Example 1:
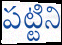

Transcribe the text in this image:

పట్టిని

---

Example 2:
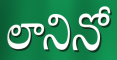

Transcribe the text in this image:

లానినో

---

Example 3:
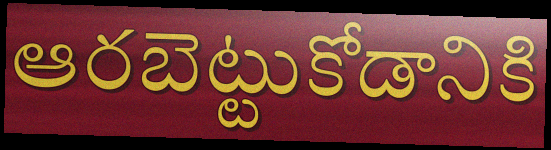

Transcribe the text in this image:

ఆరబెట్టుకోడానికి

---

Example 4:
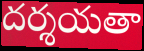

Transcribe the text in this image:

దర్శయతా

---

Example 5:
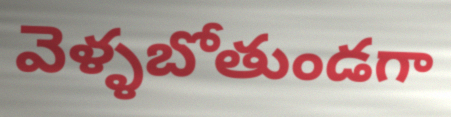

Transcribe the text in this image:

వెళ్ళబోతుండగా